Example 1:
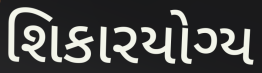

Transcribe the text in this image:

શિકારયોગ્ય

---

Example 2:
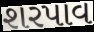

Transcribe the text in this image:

શરપાવ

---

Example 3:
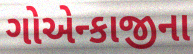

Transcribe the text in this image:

ગોએન્કાજીના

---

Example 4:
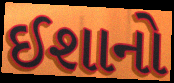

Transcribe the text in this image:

ઈશાનો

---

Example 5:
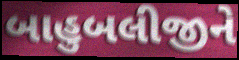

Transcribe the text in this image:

બાહુબલીજીને